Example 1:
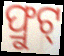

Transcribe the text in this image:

ଫ୍ରୁଟ୍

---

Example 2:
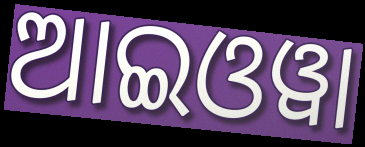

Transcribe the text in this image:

ଆଇଓୱା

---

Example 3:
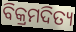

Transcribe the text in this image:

ବିକ୍ରମଦିତ୍ୟ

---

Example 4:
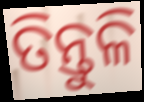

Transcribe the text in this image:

ତିନ୍ତୁଳି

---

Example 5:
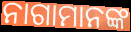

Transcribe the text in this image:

ନାଗାମାନଙ୍କ